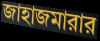
জাহাজমারার